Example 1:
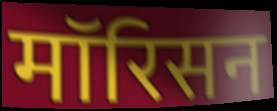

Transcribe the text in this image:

मॉरिसन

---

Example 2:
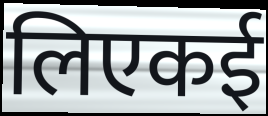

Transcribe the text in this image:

लिएकई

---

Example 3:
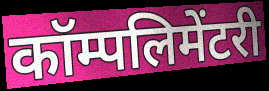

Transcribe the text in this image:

कॉम्पलिमेंटरी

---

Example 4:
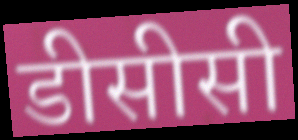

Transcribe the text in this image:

डीसीसी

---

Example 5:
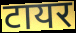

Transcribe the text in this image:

टायर